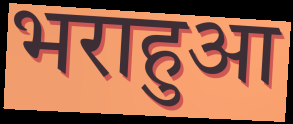
भराहुआ